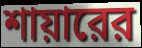
শায়ারের